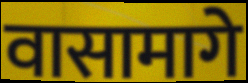
वासामागे